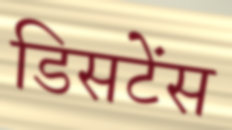
डिसटेंस